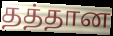
தத்தான